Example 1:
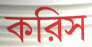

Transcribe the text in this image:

করিস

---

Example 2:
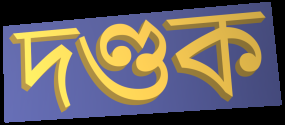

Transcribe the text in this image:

দণ্ডক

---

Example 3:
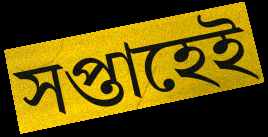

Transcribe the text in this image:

সপ্তাহেই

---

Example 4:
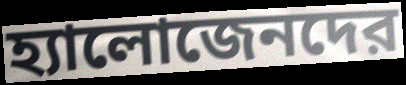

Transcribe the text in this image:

হ্যালোজেনদের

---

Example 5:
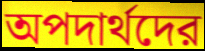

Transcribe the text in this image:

অপদার্থদের